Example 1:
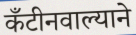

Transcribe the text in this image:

कँटीनवाल्याने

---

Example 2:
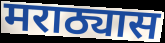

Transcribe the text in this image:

मराठ्यास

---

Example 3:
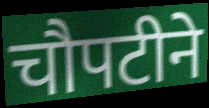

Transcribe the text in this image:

चौपटीने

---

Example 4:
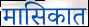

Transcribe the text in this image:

मासिकात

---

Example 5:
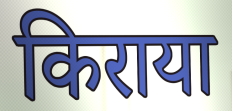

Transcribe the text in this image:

किराया